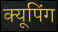
क्यूपिंग